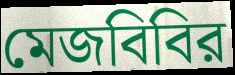
মেজবিবির